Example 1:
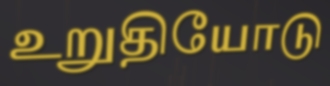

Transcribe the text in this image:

உறுதியோடு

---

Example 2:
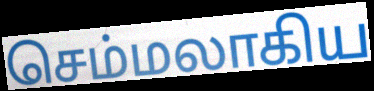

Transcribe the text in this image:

செம்மலாகிய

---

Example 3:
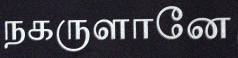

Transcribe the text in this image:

நகருளானே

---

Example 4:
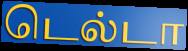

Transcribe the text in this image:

டெல்டா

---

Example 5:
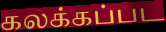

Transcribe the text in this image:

கலக்கப்பட